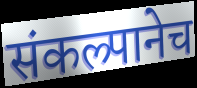
संकल्पानेच